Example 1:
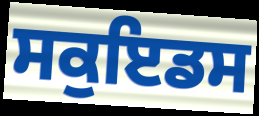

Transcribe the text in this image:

ਸਕੁਇਡਸ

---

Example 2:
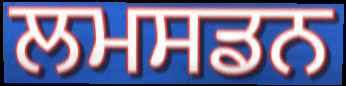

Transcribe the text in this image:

ਲਮਸਡਨ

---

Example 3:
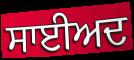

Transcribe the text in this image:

ਸਾਈਅਦ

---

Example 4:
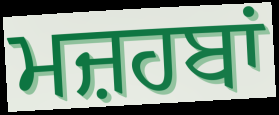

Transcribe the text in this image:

ਮਜ਼ਹਬਾਂ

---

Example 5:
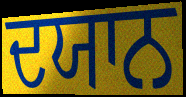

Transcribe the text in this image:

ਦਯਾਨ